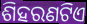
ଶିହରଣଟିଏ